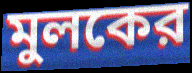
মুলকের